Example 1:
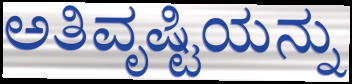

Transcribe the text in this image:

ಅತಿವೃಷ್ಟಿಯನ್ನು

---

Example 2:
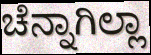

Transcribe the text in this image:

ಚೆನ್ನಾಗಿಲ್ಲಾ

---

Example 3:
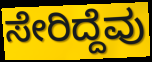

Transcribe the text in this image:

ಸೇರಿದ್ದೆವು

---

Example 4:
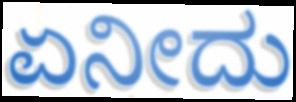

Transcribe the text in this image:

ಏನೀದು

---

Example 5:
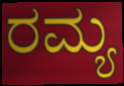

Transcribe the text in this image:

ರಮ್ಯ